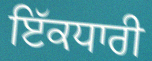
ਇੱਕਧਾਰੀ